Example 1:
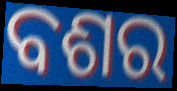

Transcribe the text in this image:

ବଶର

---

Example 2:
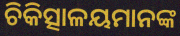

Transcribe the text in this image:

ଚିକିତ୍ସାଳୟମାନଙ୍କ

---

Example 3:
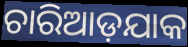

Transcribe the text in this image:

ଚାରିଆଡ଼ଯାକ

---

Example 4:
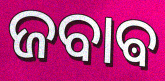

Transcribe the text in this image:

ଜବାଵ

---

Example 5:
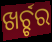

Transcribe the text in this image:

ଖର୍ଚ୍ଚର